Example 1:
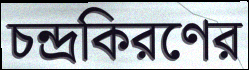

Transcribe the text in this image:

চন্দ্রকিরণের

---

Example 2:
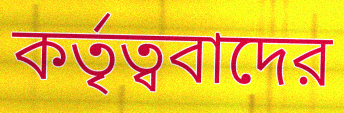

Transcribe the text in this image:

কর্তৃত্ববাদের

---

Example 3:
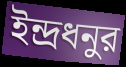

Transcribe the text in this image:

ইন্দ্রধনুর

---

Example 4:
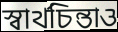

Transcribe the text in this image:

স্বার্থচিন্তাও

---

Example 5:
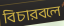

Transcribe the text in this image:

বিচারবলে